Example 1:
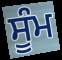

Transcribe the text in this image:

ਸੂੰਮ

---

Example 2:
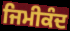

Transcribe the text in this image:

ਜਿਮੀਕੰਦ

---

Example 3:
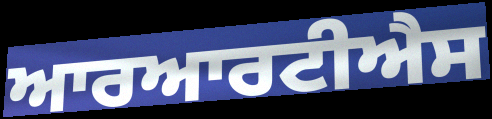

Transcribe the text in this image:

ਆਰਆਰਟੀਐਸ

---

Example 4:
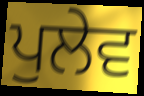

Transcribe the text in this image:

ਪੁਲੇਵ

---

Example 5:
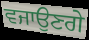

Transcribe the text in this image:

ਵਜਾਉਣਗੇ